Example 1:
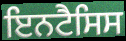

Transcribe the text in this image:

ਇਨਟੈਸਿਸ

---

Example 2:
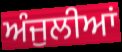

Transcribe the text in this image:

ਅੰਜੁਲੀਆਂ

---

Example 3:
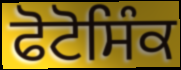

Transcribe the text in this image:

ਫੋਟੋਸਿੰਕ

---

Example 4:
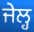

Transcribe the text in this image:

ਜੇਲ੍ਹ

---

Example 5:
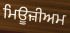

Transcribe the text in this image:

ਮਿਊਜ਼ੀਅਮ